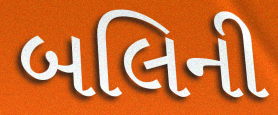
બલિની